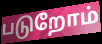
படுறோம்